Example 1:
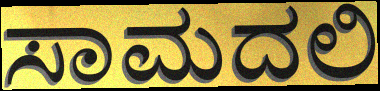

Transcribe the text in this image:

ಸಾಮದಲಿ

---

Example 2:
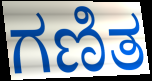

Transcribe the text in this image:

ಗಣಿತ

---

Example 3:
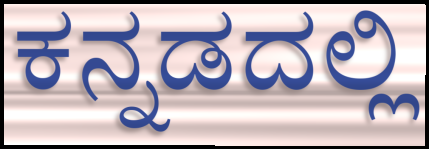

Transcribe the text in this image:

ಕನ್ನಡದಲ್ಲಿ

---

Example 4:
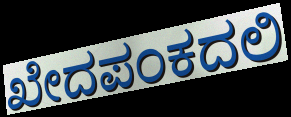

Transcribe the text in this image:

ಖೇದಪಂಕದಲಿ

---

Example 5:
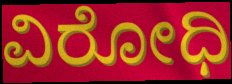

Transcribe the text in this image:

ವಿರೋಧಿ